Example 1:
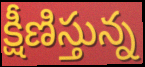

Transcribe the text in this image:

క్షీణిస్తున్న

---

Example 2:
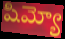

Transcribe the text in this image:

షిమ్యో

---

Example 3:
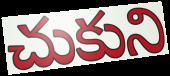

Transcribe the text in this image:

చుకుని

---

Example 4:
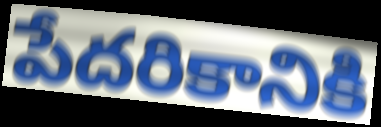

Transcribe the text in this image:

పేదరికానికి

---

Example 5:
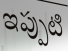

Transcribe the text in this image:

ఇప్పుటి